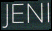
JENI